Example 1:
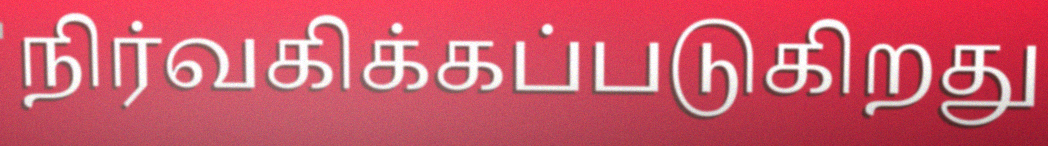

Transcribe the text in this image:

நிர்வகிக்கப்படுகிறது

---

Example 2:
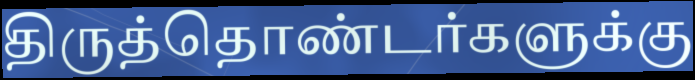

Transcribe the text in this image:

திருத்தொண்டர்களுக்கு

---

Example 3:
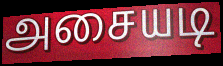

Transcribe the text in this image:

அசையடி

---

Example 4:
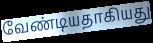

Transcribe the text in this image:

வேண்டியதாகியது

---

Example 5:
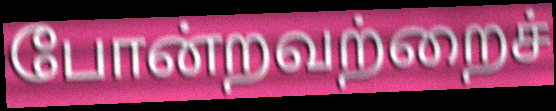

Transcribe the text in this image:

போன்றவற்றைச்